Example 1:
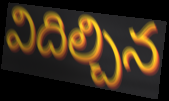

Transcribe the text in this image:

విదిల్చిన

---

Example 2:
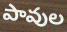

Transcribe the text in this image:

పావుల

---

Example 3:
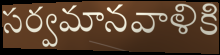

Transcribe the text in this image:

సర్వమానవాళికి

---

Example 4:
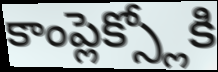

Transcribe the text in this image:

కాంప్లెక్స్లోకి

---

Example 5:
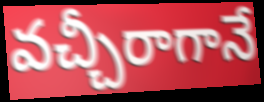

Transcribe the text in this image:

వచ్చీరాగానే